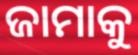
ଜାମାକୁ